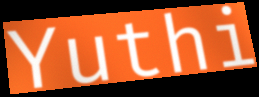
Yuthi